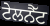
ਟੇਲਨੈੱਟ